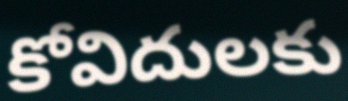
కోవిదులకు